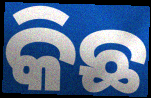
କିଛ